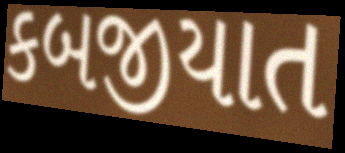
કબજીયાત